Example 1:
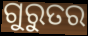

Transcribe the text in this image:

ଗୁରୁତର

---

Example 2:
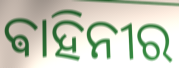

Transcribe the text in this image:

ଵାହିନୀର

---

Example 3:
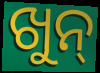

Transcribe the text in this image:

ଖୁନ୍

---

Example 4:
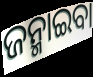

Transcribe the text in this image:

ଜନ୍ମାଇବା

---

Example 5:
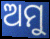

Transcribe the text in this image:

ଅମୁ